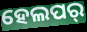
ହେଲପର୍